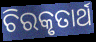
ଚିରକୃତାର୍ଥ